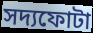
সদ্যফোটা